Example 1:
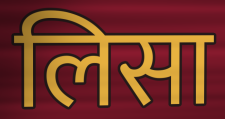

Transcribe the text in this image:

लिसा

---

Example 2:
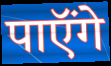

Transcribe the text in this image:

पाऍंगे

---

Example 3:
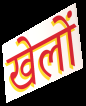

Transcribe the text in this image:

खेलों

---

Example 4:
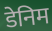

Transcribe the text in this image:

डेनिम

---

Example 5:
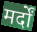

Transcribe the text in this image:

मर्दों